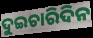
ଦୁଇଚାରିଦିନ